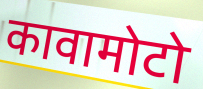
कावामोटो